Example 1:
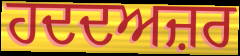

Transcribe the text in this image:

ਹਦਦਅਜ਼ਰ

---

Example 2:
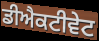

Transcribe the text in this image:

ਡੀਐਕਟੀਵੇਟ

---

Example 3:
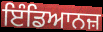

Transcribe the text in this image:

ਇੰਡਿਆਨਜ਼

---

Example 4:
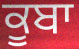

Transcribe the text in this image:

ਕੂਬਾ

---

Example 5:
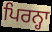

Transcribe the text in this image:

ਪਿਰਨ੍ਹਾ